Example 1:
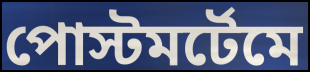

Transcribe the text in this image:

পোস্টমর্টেমে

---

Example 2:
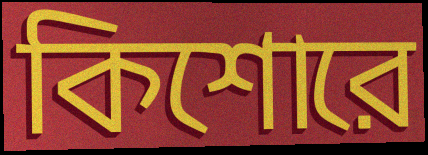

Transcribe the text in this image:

কিশোরে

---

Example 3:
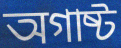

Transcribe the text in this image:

অগাষ্ট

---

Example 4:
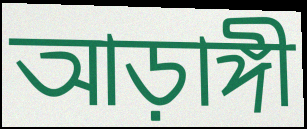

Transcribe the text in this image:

আড়াঙ্গী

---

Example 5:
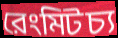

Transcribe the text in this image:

রেংমিটচ্য